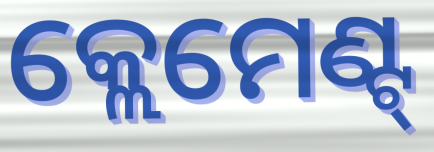
କ୍ଲେମେଣ୍ଟ୍